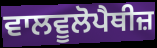
ਵਾਲਵੂਲੋਪੈਥੀਜ਼